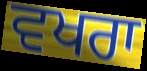
ਵਖਰਾ